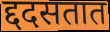
द्ददसतात